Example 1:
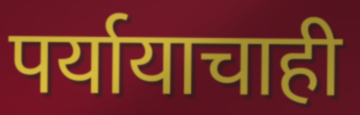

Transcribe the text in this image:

पर्यायाचाही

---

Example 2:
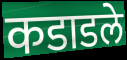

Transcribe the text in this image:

कडाडले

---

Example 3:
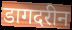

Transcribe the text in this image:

डागदरीन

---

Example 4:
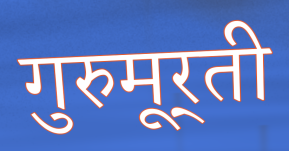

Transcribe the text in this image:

गुरुमूर्ती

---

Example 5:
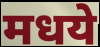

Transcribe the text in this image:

मधये